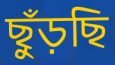
ছুঁড়ছি